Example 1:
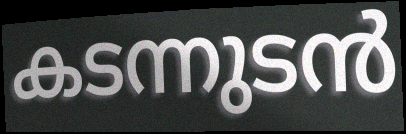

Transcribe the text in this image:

കടന്നുടൻ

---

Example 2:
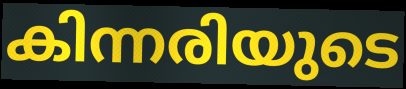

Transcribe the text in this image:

കിന്നരിയുടെ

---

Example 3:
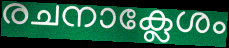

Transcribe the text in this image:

രചനാക്ലേശം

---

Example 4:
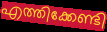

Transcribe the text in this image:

എത്തിക്കേണ്ടി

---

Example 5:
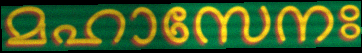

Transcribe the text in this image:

മഹാസേനഃ